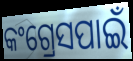
କଂଗ୍ରେସପାଇଁ